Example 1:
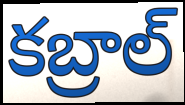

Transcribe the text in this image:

కబ్రాల్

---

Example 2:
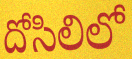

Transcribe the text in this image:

దోసిలిలో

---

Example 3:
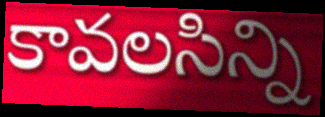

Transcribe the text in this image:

కావలసిన్ని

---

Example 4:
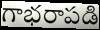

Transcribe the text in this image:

గాభరాపడి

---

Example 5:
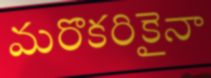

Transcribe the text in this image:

మరొకరికైనా